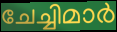
ചേച്ചിമാർ